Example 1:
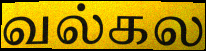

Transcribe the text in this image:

வல்கல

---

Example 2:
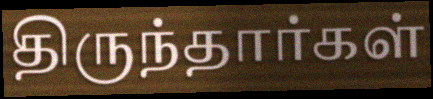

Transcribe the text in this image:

திருந்தார்கள்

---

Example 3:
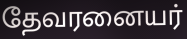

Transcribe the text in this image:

தேவரனையர்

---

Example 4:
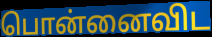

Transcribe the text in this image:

பொன்னைவிட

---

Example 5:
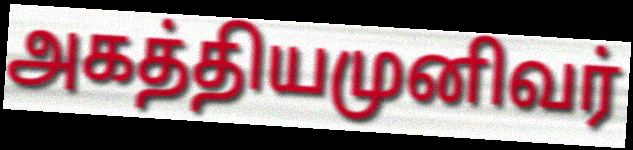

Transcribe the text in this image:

அகத்தியமுனிவர்